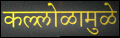
कल्लोळामुळे